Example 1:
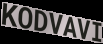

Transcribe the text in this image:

KODVAVI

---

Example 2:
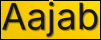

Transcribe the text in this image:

Aajab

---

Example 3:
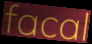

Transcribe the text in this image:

facal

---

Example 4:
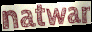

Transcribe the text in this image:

natwar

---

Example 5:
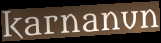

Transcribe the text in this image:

karnanun